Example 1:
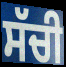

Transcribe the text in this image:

ਸੱਚੀ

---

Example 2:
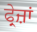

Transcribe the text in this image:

ਫ੍ਰੇਜ਼ਾਂ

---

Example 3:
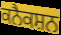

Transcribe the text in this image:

ਕਨੈਕਸ਼ਨ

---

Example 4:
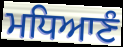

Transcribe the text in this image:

ਮਧਿਆਣੰ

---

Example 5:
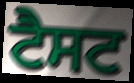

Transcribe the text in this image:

ਟੈਸਟ